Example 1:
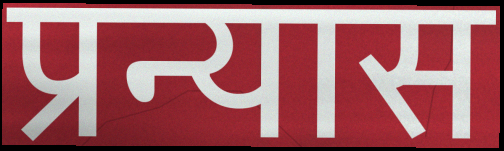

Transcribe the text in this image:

प्रन्यास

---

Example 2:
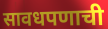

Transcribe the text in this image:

सावधपणाची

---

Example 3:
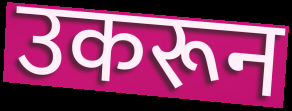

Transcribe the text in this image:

उकरून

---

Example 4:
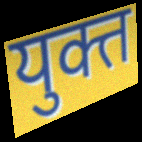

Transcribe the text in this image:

युक्त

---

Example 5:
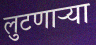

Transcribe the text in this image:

लुटणाऱ्या